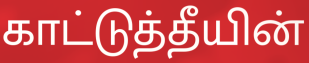
காட்டுத்தீயின்